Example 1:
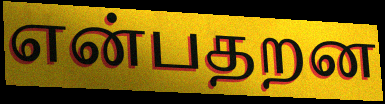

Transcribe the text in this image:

என்பதறன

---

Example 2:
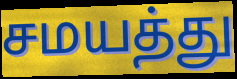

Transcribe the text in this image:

சமயத்து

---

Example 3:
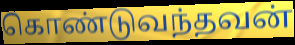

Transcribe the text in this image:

கொண்டுவந்தவன்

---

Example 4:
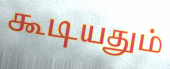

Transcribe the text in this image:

கூடியதும்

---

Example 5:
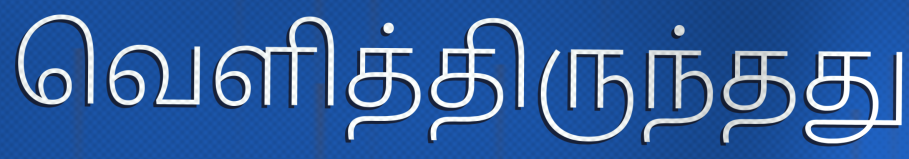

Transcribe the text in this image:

வெளித்திருந்தது